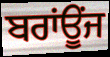
ਬਰਾਂਊਂਜ